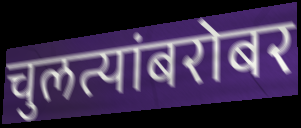
चुलत्यांबरोबर